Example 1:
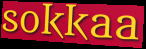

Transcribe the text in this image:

sokkaa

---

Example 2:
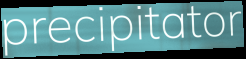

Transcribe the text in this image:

precipitator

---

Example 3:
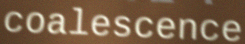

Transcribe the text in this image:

coalescence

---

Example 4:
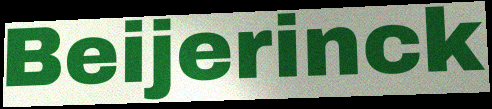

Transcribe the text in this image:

Beijerinck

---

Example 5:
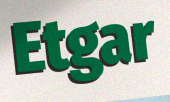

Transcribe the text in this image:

Etgar